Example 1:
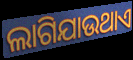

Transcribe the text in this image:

ଲାଗିଯାଉଥାଏ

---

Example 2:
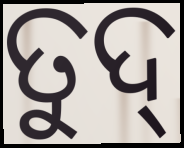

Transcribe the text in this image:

ତୁଦ୍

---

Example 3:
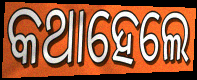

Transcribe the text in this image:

କଥାହେଲେ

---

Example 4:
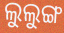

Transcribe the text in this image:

ଲୁଲୁଙ୍ଗ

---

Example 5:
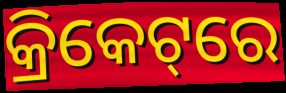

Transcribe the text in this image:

କ୍ରିକେଟ୍‌ରେ